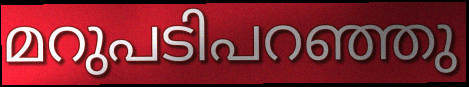
മറുപടിപറഞ്ഞു